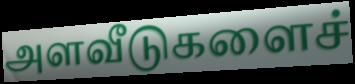
அளவீடுகளைச்